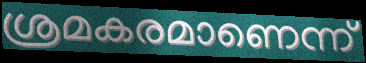
ശ്രമകരമാണെന്ന്